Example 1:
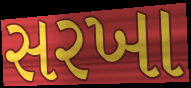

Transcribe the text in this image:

સરખા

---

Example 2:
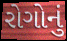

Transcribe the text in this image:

રોગોનું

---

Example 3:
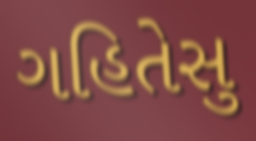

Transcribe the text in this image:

ગહિતેસુ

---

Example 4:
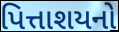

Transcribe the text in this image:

પિત્તાશયનો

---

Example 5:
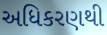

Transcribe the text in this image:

અધિકરણથી